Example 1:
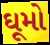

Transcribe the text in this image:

ઘૂમો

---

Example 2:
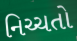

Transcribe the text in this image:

નિચ્ચતો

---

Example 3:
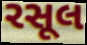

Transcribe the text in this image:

રસૂલ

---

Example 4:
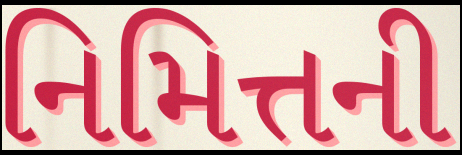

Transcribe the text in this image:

નિમિત્તની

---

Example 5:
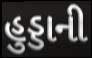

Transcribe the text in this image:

હુડ્ડાની